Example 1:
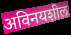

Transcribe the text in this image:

अविनयशील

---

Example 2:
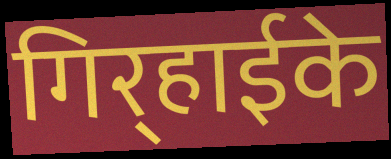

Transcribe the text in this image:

गिर्‍हाईके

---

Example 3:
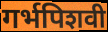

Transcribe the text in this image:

गर्भपिशवी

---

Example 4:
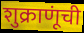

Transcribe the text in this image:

शुक्राणूंची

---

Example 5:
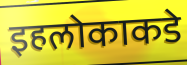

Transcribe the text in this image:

इहलोकाकडे